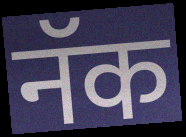
नॅक